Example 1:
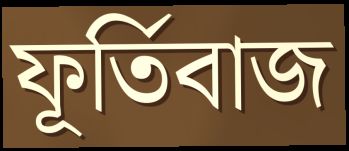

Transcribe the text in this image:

ফূর্তিবাজ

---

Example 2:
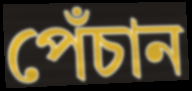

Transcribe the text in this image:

পেঁচান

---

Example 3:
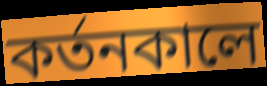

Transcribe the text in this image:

কর্তনকালে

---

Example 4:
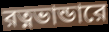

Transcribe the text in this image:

রত্নভান্ডারে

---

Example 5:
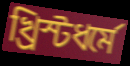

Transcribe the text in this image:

খ্রিস্টধর্মে